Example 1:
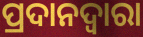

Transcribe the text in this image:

ପ୍ରଦାନଦ୍ୱାରା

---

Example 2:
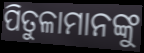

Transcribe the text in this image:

ପିତୁଳାମାନଙ୍କୁ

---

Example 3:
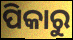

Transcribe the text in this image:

ପିକାରୁ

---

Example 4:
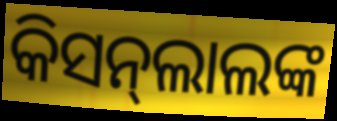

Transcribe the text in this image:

କିସନ୍‌ଲାଲଙ୍କ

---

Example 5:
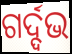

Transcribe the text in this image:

ଗର୍ଦ୍ଦଭ